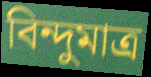
বিন্দুমাত্র